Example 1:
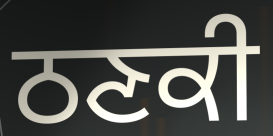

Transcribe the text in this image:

ਠਣਕੀ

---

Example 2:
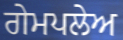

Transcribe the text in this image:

ਗੇਮਪਲੇਅ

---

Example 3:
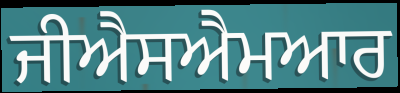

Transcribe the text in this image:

ਜੀਐਸਐਮਆਰ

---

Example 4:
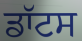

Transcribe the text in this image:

ਡਾੱਟਸ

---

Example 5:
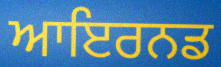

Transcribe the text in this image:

ਆਇਰਨਡ